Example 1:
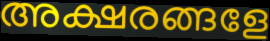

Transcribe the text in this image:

അക്ഷരങ്ങളേ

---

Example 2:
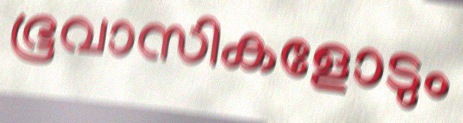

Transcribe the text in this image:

ഭൂവാസികളോടും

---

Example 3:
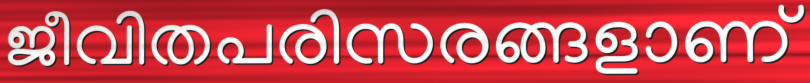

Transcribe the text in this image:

ജീവിതപരിസരങ്ങളാണ്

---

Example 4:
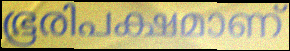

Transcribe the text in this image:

ഭൂരിപക്ഷമാണ്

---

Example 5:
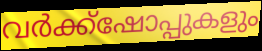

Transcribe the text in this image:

വർക്ക്ഷോപ്പുകളും